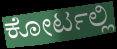
ಕೋರ್ಟಲ್ಲಿ